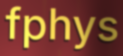
fphys